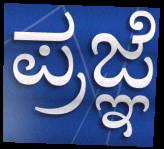
ಪ್ರಜ್ಞೆ